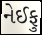
નેઈફુ